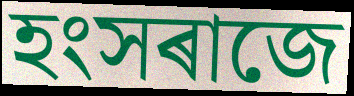
হংসৰাজে